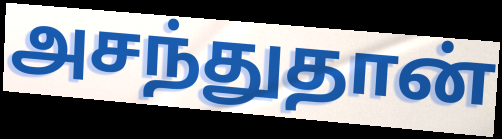
அசந்துதான்